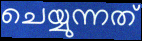
ചെയ്യുന്നത്